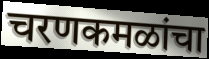
चरणकमळांचा